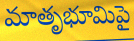
మాతృభూమిపై